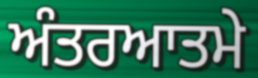
ਅੰਤਰਆਤਮੇ